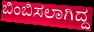
ಬಿಂಬಿಸಲಾಗಿದ್ದ